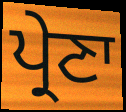
ਪ੍ਰੇਣਾ